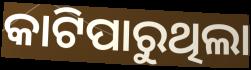
କାଟିପାରୁଥିଲା